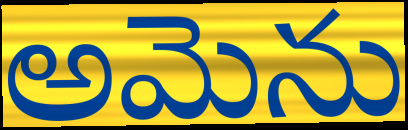
అమెను